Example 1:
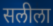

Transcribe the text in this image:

सलीला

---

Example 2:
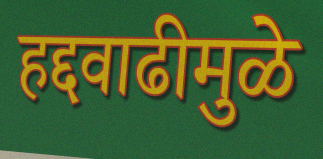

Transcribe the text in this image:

हद्दवाढीमुळे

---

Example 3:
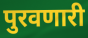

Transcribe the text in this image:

पुरवणारी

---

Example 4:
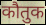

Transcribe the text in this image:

कौतुक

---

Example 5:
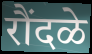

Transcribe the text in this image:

रौंदळे